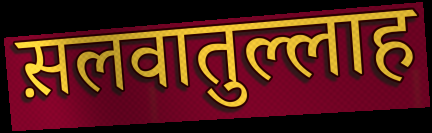
स़लवातुल्लाह